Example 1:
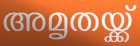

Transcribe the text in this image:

അമൃതയ്ക്ക്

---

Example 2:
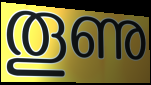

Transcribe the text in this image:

തൂണു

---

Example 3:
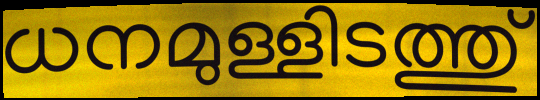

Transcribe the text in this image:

ധനമുള്ളിടത്തു്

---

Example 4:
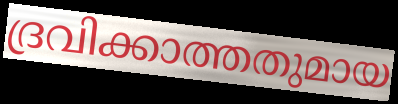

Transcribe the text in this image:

ദ്രവിക്കാത്തതുമായ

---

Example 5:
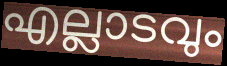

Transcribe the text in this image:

എല്ലാടവും